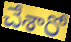
చేశారో